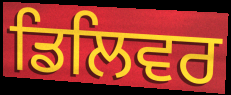
ਡਿਲਿਵਰ